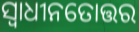
ସ୍ୱାଧୀନତୋତ୍ତର